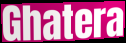
Ghatera